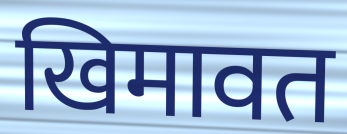
खिमावत